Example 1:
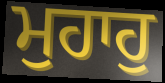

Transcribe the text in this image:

ਮੁਹਾਹੁ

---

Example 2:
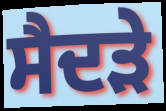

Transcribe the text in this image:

ਸੈਦੜੇ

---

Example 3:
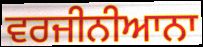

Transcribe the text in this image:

ਵਰਜੀਨੀਆਨਾ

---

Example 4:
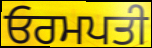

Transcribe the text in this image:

ਓਰਮਪਤੀ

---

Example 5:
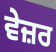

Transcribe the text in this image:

ਵੇਜ਼ਰ